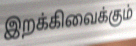
இறக்கிவைக்கும்